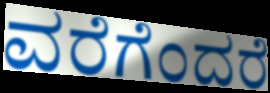
ವರೆಗೆಂದರೆ